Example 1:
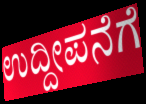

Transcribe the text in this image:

ಉದ್ದೀಪನೆಗೆ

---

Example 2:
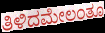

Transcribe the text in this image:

ತಿಳಿದಮೇಲಂತೂ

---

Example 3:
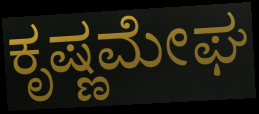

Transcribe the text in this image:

ಕೃಷ್ಣಮೇಘ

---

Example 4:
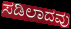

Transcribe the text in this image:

ಸಡಿಲಾದವು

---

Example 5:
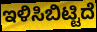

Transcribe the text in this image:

ಇಳಿಸಿಬಿಟ್ಟಿದೆ